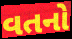
વતનો